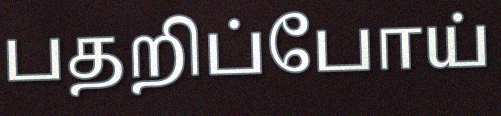
பதறிப்போய்